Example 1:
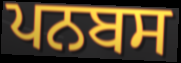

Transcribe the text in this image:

ਪਨਬਸ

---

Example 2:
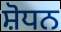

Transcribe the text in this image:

ਸ਼ੋਧਨ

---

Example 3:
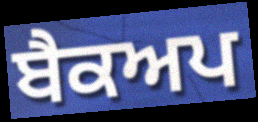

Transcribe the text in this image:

ਬੈਕਅਪ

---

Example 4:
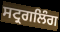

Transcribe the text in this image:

ਸਟ੍ਰਗਲਿੰਗ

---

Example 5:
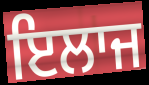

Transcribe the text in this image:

ਇਲਾਜ